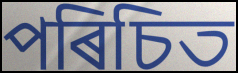
পৰিচিত